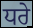
ਧਰੇ